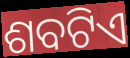
ଶବଟିଏ